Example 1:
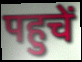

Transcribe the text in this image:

पहुचें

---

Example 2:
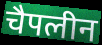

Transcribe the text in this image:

चैपलीन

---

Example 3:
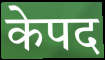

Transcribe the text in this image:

केपद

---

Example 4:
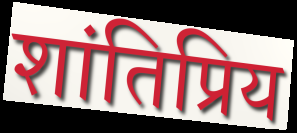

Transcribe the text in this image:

शांतिप्रिय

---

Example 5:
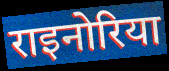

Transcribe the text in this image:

राइनोरिया